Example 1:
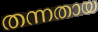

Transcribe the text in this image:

തന്നതായ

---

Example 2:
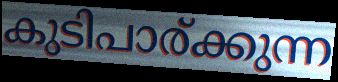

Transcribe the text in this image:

കുടിപാര്ക്കുന്ന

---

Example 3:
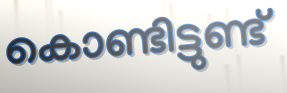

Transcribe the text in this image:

കൊണ്ടിട്ടുണ്ട്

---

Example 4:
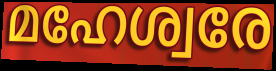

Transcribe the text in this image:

മഹേശ്വരേ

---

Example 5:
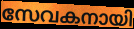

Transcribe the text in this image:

സേവകനായി